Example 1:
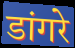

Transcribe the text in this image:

डांगरे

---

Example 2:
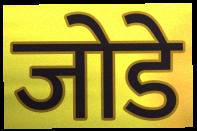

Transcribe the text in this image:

जोडे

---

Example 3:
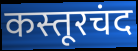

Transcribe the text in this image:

कस्तूरचंद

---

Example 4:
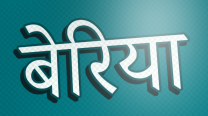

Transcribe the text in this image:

बेरिया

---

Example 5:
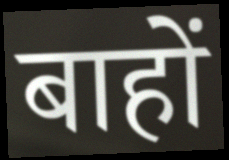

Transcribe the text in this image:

बाहों